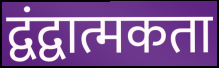
द्वंद्वात्मकता